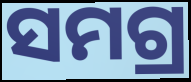
ସମଗ୍ର